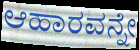
ಆಹಾರವನ್ನೇ